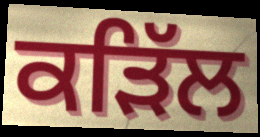
ਕੜਿੱਲ